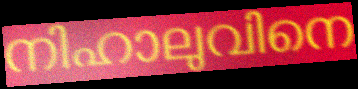
നിഹാലുവിനെ